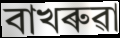
বাখৰুৱা